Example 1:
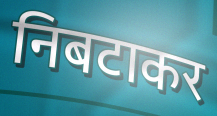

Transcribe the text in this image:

निबटाकर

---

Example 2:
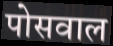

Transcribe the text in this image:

पोसवाल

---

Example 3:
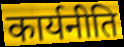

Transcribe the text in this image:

कार्यनीति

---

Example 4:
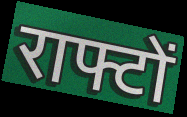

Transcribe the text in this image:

राफ्टों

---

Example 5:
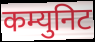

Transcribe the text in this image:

कम्युनिट